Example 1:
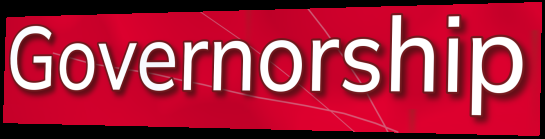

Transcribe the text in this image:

Governorship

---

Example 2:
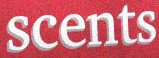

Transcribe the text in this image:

scents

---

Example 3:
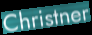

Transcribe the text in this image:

Christner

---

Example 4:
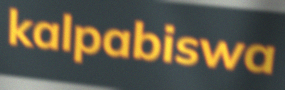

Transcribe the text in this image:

kalpabiswa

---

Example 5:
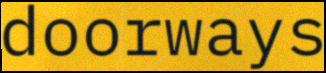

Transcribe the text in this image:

doorways